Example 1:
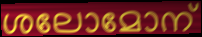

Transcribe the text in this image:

ശലോമോന്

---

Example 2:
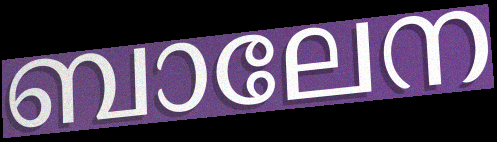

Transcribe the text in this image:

ബാലേന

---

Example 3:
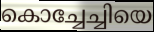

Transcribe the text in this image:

കൊച്ചേച്ചിയെ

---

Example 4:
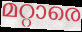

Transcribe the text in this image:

മറ്റാരെ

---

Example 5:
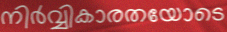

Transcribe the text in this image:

നിർവ്വികാരതയോടെ